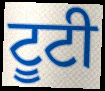
ਟੂਟੀ